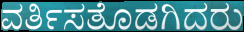
ವರ್ತಿಸತೊಡಗಿದರು